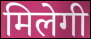
मिलेगी